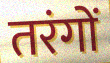
तरंगों